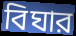
বিঘার